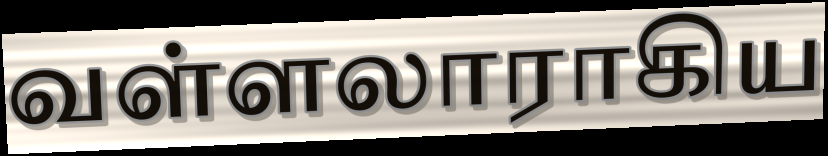
வள்ளலாராகிய